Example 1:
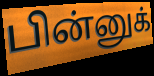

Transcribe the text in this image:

பின்னுக்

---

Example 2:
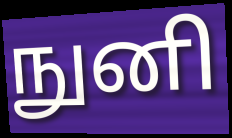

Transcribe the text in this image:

நுனி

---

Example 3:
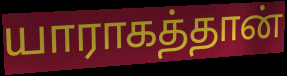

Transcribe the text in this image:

யாராகத்தான்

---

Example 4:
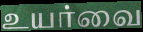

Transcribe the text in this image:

உயர்வை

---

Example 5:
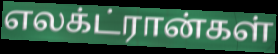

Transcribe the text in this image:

எலக்ட்ரான்கள்